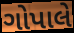
ગોપાલે